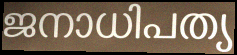
ജനാധിപത്യ